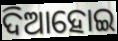
ଦିଆହୋଇ